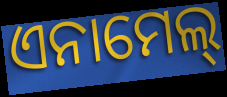
ଏନାମେଲ୍